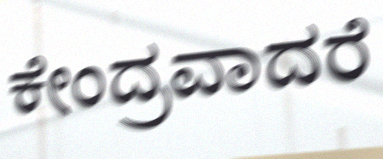
ಕೇಂದ್ರವಾದರೆ